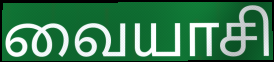
வையாசி